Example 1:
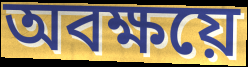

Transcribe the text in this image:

অবক্ষয়ে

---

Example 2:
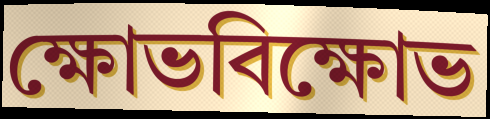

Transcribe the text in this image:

ক্ষোভবিক্ষোভ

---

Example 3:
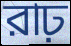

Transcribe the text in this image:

রাঢ়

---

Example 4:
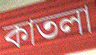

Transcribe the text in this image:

কাতলা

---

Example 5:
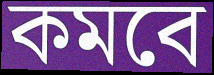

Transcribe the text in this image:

কমবে